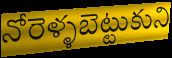
నోరెళ్ళబెట్టుకుని